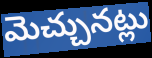
మెచ్చునట్లు